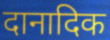
दानादिक